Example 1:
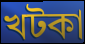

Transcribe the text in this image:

খটকা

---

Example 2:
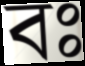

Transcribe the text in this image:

বঃ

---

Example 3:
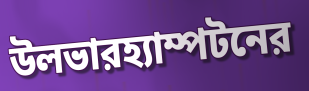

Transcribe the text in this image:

উলভারহ্যাম্পটনের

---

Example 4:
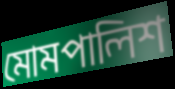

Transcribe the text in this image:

মোমপালিশ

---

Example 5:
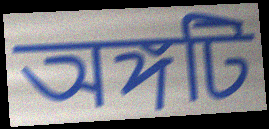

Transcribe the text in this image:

অঙ্গটি